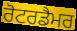
ਰੋਟਰਡੈਮਰ